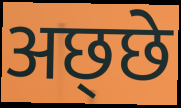
अछ्छे